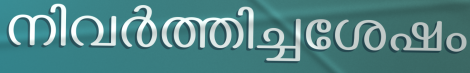
നിവർത്തിച്ചശേഷം